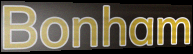
Bonham